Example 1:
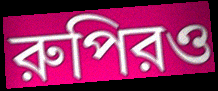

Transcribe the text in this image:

রুপিরও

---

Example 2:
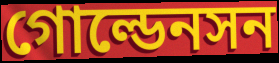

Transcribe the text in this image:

গোল্ডেনসন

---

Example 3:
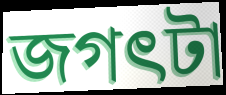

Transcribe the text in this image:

জগৎটা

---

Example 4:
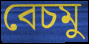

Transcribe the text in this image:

বেচমু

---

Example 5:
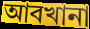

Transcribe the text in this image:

আবখানা